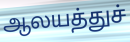
ஆலயத்துச்